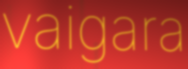
vaigara